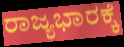
ರಾಜ್ಯಭಾರಕ್ಕೆ